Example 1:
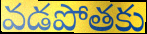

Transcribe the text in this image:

వడపోతకు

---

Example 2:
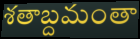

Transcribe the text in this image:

శతాబ్దమంతా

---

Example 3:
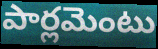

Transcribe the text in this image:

పార్లమెంటు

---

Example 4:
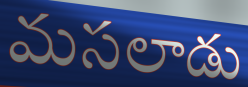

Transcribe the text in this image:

మసలాడు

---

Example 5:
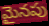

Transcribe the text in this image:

మైనపు